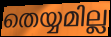
തെയ്യമില്ല